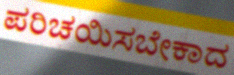
ಪರಿಚಯಿಸಬೇಕಾದ